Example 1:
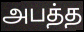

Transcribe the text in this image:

அபத்த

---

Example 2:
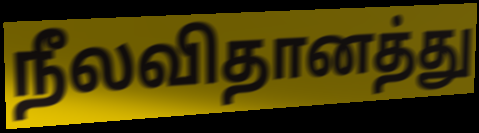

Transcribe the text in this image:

நீலவிதானத்து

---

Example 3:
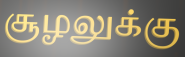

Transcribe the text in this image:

சூழலுக்கு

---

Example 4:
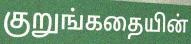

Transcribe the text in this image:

குறுங்கதையின்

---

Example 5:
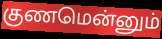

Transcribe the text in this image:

குணமென்னும்